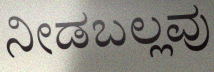
ನೀಡಬಲ್ಲವು